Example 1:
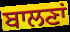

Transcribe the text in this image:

ਬਾਲਣਾਂ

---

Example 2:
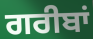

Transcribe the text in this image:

ਗਰੀਬਾਂ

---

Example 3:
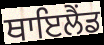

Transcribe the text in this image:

ਥਾਇਲੈਂਡ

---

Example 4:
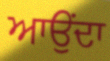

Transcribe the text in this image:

ਆਉਂਦਾ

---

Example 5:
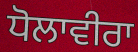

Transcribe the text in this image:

ਧੋਲਾਵੀਰਾ